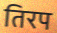
तिरप